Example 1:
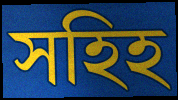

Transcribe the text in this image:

সহিহ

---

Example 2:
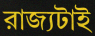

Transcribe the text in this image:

রাজ্যটাই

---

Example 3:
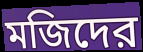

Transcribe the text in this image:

মজিদের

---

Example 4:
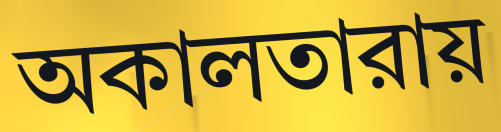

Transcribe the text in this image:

অকালতারায়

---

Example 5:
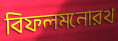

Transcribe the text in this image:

বিফলমনোরথ